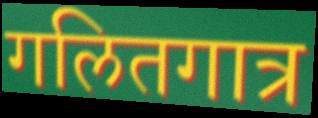
गलितगात्र